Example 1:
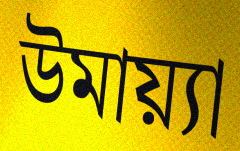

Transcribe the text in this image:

উমায়্যা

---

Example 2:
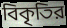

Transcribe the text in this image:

বিকৃতির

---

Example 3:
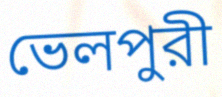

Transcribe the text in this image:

ভেলপুরী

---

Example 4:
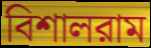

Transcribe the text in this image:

বিশালরাম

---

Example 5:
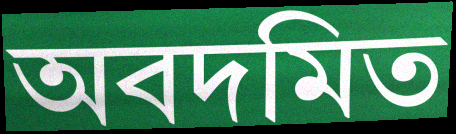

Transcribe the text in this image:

অবদমিত